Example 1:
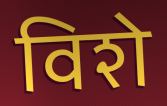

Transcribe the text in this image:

विशे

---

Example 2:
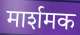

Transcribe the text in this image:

मार्शमक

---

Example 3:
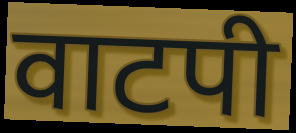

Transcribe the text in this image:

वाटपी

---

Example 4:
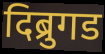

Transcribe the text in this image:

दिब्रुगड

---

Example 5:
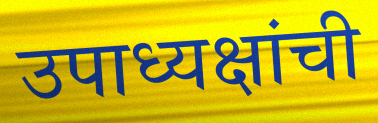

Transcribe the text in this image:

उपाध्यक्षांची